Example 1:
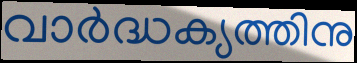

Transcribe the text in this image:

വാർദ്ധക്യത്തിനു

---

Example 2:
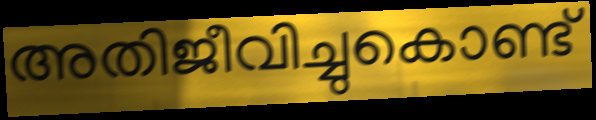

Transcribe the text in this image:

അതിജീവിച്ചുകൊണ്ട്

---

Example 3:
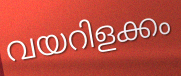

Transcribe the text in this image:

വയറിളക്കം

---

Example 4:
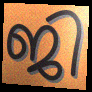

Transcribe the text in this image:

ജി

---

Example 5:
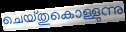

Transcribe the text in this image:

ചെയ്തുകൊള്ളുന്നു